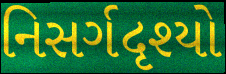
નિસર્ગદૃશ્યો